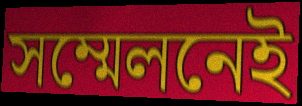
সম্মেলনেই